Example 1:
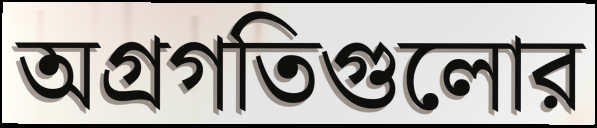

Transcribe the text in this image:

অগ্রগতিগুলোর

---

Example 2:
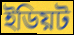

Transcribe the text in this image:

ইডিয়ট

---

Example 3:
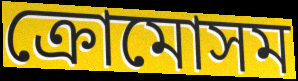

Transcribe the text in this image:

ক্রোমোসম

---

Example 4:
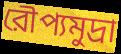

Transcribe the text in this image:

রৌপ্যমুদ্রা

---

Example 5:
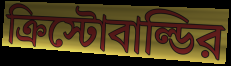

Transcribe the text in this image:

ক্রিস্টোবাল্ডির